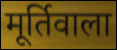
मूर्तिवाला